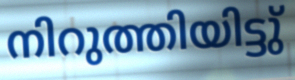
നിറുത്തിയിട്ടു്